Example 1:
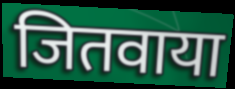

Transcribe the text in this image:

जितवाया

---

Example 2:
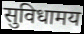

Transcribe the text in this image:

सुविधामय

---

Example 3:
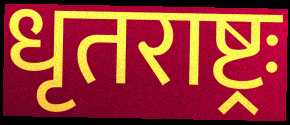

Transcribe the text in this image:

धृतराष्ट्रः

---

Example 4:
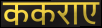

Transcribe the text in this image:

ककराए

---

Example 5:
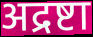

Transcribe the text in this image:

अद्रष्टा